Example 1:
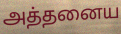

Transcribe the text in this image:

அத்தனைய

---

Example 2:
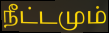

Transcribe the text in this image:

நீட்டமும்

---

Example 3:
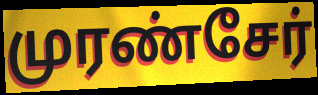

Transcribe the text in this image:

முரண்சேர்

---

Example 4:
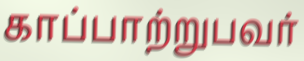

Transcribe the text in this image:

காப்பாற்றுபவர்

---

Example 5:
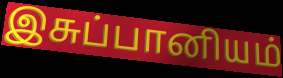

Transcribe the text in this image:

இசுப்பானியம்